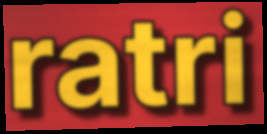
ratri